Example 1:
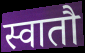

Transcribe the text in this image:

स्वातौ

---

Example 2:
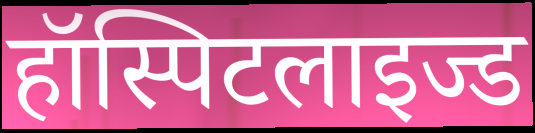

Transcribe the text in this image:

हॉस्पिटलाइज्ड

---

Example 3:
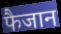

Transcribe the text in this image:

फैजान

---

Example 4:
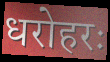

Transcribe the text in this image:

धरोहरः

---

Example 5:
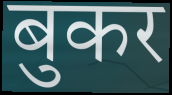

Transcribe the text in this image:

बुकर